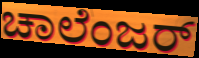
ಚಾಲೆಂಜರ್